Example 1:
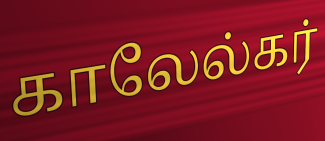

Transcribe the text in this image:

காலேல்கர்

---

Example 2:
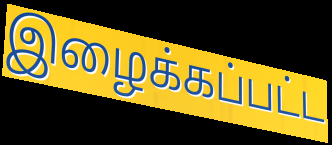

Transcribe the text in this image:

இழைக்கப்பட்ட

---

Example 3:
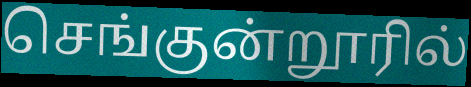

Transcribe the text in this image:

செங்குன்றூரில்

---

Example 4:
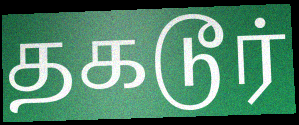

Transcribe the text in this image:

தகடூர்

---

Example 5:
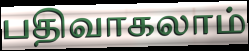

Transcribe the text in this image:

பதிவாகலாம்